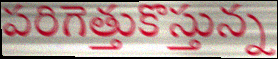
పరిగెత్తుకొస్తున్న